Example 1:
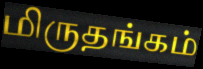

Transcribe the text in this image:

மிருதங்கம்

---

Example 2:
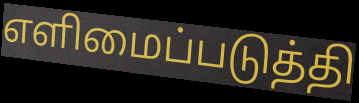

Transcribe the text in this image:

எளிமைப்படுத்தி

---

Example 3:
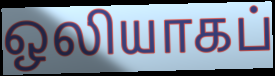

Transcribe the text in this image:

ஒலியாகப்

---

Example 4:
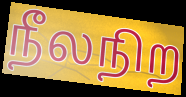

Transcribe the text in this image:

நீலநிற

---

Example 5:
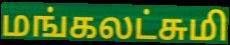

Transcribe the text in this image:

மங்கலட்சுமி